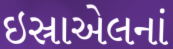
ઇસ્રાએલનાં